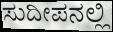
ಸುದೀಪನಲ್ಲಿ